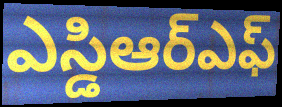
ఎస్డిఆర్ఎఫ్